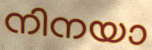
നിനയാ